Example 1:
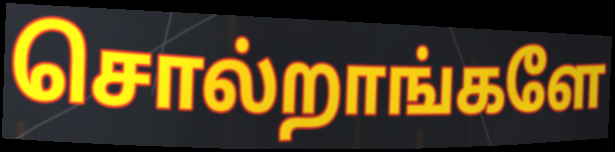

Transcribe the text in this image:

சொல்றாங்களே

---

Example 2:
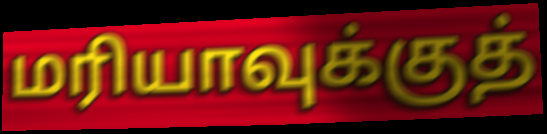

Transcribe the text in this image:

மரியாவுக்குத்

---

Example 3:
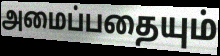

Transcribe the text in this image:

அமைப்பதையும்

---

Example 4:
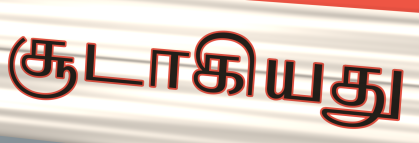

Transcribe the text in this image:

சூடாகியது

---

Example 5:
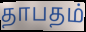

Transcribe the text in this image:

தாபதம்